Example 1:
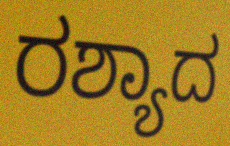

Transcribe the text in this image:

ರಶ್ಯಾದ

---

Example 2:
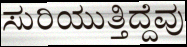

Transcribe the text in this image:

ಸುರಿಯುತ್ತಿದ್ದೆವು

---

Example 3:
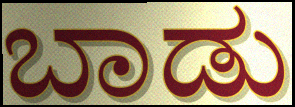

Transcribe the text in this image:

ಬಾಡು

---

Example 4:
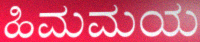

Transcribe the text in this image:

ಹಿಮಮಯ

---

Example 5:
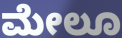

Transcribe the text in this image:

ಮೇಲೂ